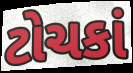
ટોચકાં